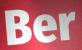
Ber